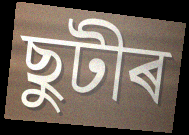
ছুটীৰ